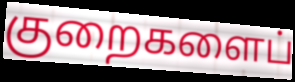
குறைகளைப்